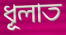
ধূলাত